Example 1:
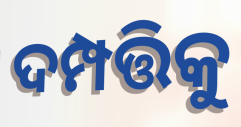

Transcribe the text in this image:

ଦମ୍ପତ୍ତିକୁ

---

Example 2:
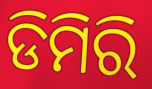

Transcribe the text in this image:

ଡିମିରି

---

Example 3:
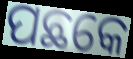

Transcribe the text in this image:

ପଛକେ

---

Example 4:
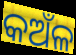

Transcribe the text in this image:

କଅଁଳ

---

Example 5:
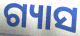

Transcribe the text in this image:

ଗ୍ୟାସ